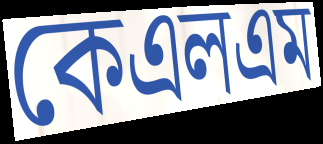
কেএলএম